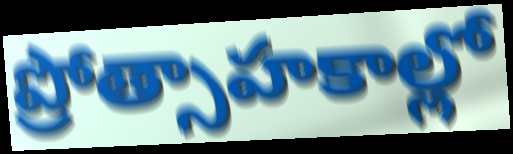
ప్రోత్సాహకాల్లో